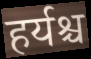
हर्यश्च